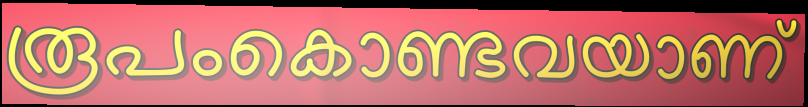
രൂപംകൊണ്ടവയാണ്